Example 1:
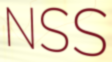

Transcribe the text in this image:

NSS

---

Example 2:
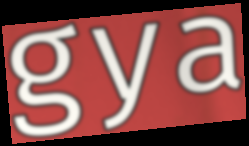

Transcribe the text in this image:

gya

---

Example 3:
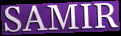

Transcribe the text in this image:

SAMIR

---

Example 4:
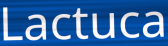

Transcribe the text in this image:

Lactuca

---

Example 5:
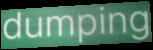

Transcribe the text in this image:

dumping